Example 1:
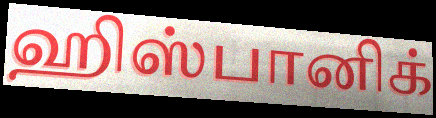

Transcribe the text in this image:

ஹிஸ்பானிக்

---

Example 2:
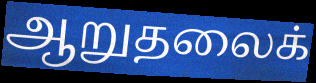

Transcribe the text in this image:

ஆறுதலைக்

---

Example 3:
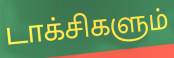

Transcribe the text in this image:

டாக்சிகளும்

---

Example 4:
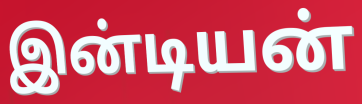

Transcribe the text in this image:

இன்டியன்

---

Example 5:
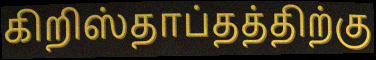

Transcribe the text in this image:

கிறிஸ்தாப்தத்திற்கு